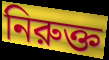
নিরুক্ত